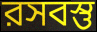
রসবস্তু